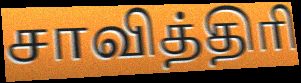
சாவித்திரி